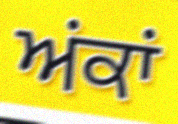
ਅਂਕਾਂ